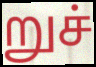
றுச்